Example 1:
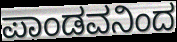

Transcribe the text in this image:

ಪಾಂಡವನಿಂದ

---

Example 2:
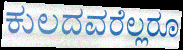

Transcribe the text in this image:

ಕುಲದವರೆಲ್ಲರೂ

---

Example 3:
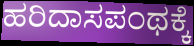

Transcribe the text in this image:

ಹರಿದಾಸಪಂಥಕ್ಕೆ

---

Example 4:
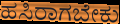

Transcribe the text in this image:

ಹಸಿರಾಗಬೇಕು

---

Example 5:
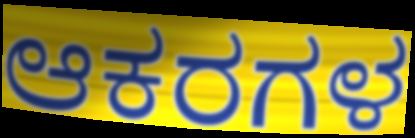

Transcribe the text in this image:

ಆಕರಗಳ